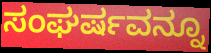
ಸಂಘರ್ಷವನ್ನೂ